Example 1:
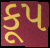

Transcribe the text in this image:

કૂપ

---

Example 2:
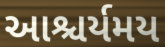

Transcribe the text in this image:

આશ્ચર્યમય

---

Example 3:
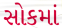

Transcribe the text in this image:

સોકમાં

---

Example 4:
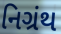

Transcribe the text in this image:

નિગ્રંથ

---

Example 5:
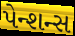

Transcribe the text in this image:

પેન્શન્સ